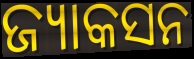
ଜ୍ୟାକସନ